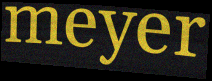
meyer